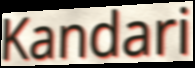
Kandari